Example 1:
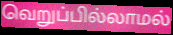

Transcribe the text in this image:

வெறுப்பில்லாமல்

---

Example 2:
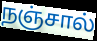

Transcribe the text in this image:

நஞ்சால்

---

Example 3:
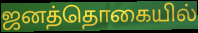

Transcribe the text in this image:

ஜனத்தொகையில்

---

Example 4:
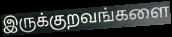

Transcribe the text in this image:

இருக்குறவங்களை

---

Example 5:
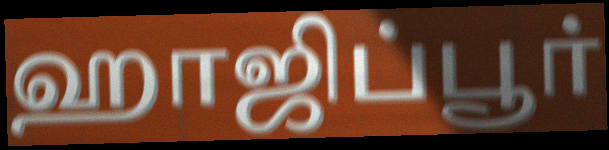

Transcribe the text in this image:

ஹாஜிப்பூர்